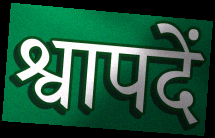
श्वापदें